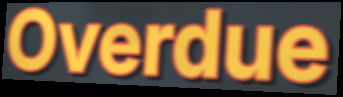
Overdue